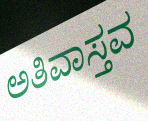
ಅತಿವಾಸ್ತವ